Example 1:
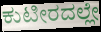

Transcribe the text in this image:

ಕುಟೀರದಲ್ಲೇ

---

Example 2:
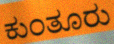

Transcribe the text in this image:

ಕುಂತೂರು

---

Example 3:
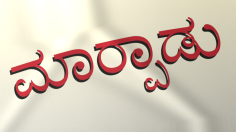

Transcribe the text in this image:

ಮಾರ‍್ಪಾಡು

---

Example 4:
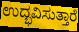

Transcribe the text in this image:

ಉದ್ಭವಿಸುತ್ತಾರೆ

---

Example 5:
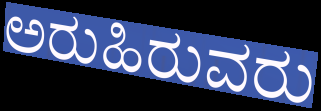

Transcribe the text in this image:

ಅರುಹಿರುವರು